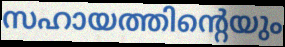
സഹായത്തിന്റെയും